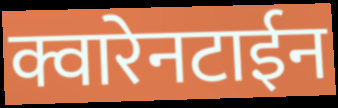
क्वारेनटाईन